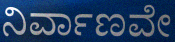
ನಿರ್ವಾಣವೇ